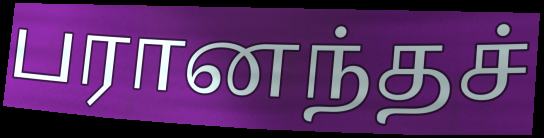
பரானந்தச்